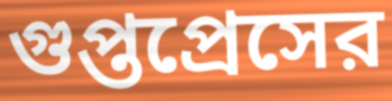
গুপ্তপ্রেসের